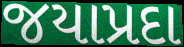
જયાપ્રદા